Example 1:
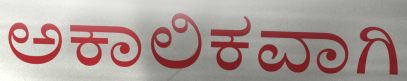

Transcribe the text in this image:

ಅಕಾಲಿಕವಾಗಿ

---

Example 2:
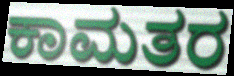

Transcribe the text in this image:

ಕಾಮತರ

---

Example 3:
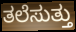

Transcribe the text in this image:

ತಲೆಸುತ್ತು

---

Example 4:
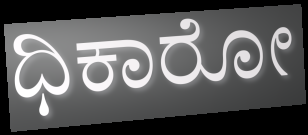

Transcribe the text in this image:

ಧಿಕಾರೋ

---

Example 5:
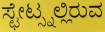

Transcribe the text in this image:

ಸ್ಟೇಟ್ಸ್ನಲ್ಲಿರುವ